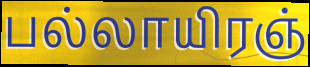
பல்லாயிரஞ்